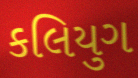
કલિયુગ